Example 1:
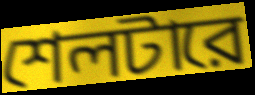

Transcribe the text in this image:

শেলটারে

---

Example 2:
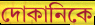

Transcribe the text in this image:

দোকানিকে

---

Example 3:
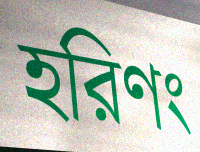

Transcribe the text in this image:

হরিণং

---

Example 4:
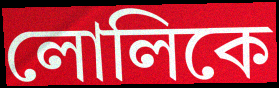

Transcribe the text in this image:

লোলিকে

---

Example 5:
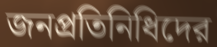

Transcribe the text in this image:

জনপ্রতিনিধিদের